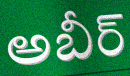
అబీర్